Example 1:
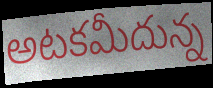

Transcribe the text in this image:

అటకమీదున్న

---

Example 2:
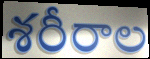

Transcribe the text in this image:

శరీరాల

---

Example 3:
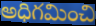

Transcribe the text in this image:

అధిగమించి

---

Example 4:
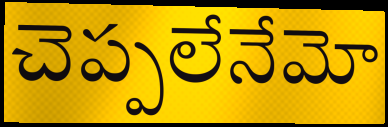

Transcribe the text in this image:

చెప్పలేనేమో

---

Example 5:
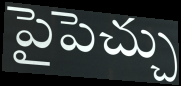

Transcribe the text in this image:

పైపెచ్చు